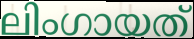
ലിംഗായത്